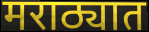
मराठ्यात